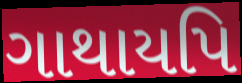
ગાથાયપિ